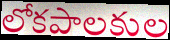
లోకపాలకుల